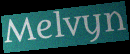
Melvyn